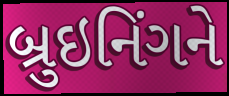
બ્રુઇનિંગને